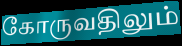
கோருவதிலும்